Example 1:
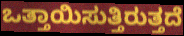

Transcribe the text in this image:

ಒತ್ತಾಯಿಸುತ್ತಿರುತ್ತದೆ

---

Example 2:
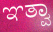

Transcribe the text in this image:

ಞತ್ವಾ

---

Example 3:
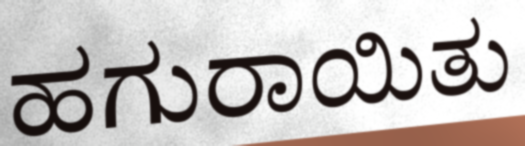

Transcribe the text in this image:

ಹಗುರಾಯಿತು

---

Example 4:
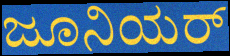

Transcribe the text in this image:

ಜೂನಿಯರ್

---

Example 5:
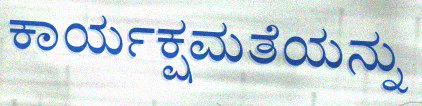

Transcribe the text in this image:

ಕಾರ್ಯಕ್ಷಮತೆಯನ್ನು